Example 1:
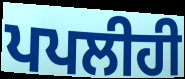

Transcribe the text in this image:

ਪਪਲੀਹੀ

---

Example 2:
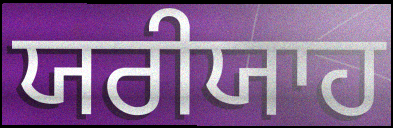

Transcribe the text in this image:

ਯਰੀਯਾਹ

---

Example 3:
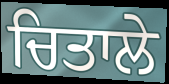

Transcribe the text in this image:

ਚਿਤਾਲੇ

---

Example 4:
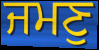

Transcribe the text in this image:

ਜਮਣੁ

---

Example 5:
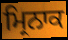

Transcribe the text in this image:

ਮ੍ਰਿਨਾਕ